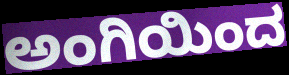
ಅಂಗಿಯಿಂದ